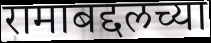
रामाबद्दलच्या